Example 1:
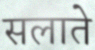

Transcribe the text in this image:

सलाते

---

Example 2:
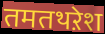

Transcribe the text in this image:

तमतथऱेश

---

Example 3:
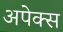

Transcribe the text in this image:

अपेक्स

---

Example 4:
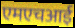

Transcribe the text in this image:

एमएचआई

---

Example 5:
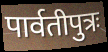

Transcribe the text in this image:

पार्वतीपुत्रः